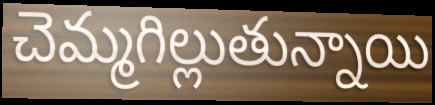
చెమ్మగిల్లుతున్నాయి